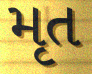
મૃત